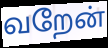
வறேன்